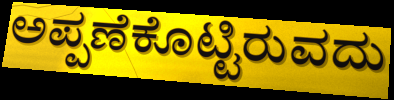
ಅಪ್ಪಣೆಕೊಟ್ಟಿರುವದು